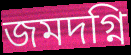
জমদগ্নি